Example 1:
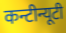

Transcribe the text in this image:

कन्टीन्यूटी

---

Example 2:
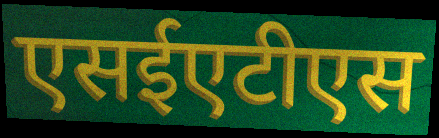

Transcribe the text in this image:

एसईएटीएस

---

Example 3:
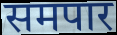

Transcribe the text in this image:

समपार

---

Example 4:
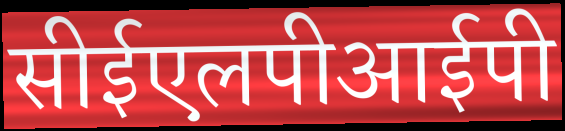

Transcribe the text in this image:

सीईएलपीआईपी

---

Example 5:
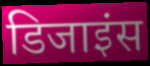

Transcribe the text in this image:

डिजाइंस